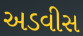
અડવીસ